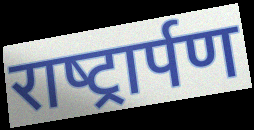
राष्ट्रार्पण